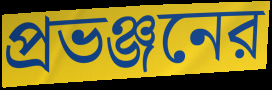
প্রভঞ্জনের